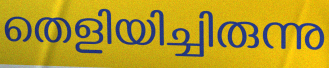
തെളിയിച്ചിരുന്നു